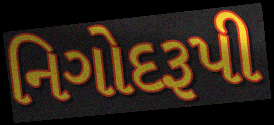
નિગોદરૂપી